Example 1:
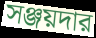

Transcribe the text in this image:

সঞ্জয়দার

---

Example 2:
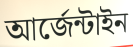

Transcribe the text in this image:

আর্জেন্টাইন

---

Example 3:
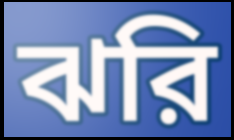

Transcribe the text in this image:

ঝরি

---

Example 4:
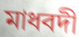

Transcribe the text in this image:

মাধবদী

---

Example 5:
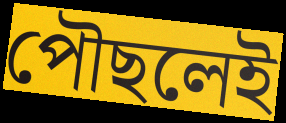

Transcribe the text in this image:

পৌছলেই